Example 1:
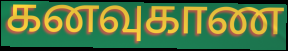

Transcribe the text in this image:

கனவுகாண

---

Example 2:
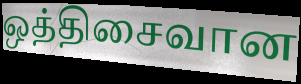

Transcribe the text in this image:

ஒத்திசைவான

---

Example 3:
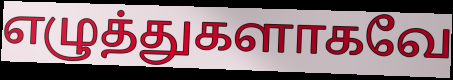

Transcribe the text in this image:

எழுத்துகளாகவே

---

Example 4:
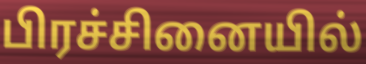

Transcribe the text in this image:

பிரச்சினையில்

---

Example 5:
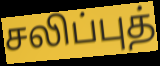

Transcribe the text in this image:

சலிப்புத்